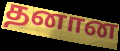
தனான